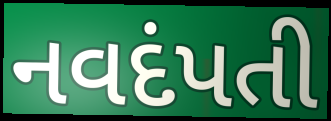
નવદંપતી